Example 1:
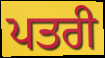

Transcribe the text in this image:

ਪਤਰੀ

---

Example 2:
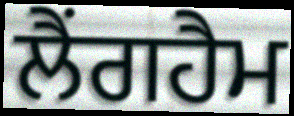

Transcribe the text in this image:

ਲੈਂਗਹੈਮ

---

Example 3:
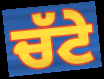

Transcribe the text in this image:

ਚੱਟੇ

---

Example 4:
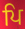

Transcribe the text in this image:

ਪਿ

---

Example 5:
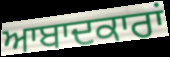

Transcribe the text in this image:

ਆਬਾਦਕਾਰਾਂ